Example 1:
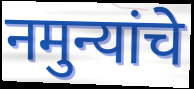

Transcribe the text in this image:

नमुन्यांचे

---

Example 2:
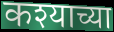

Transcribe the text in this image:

कश्याच्या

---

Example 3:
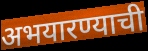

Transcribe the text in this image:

अभयारण्याची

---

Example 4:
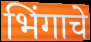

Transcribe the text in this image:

भिंगाचे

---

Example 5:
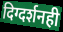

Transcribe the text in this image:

दिग्दर्शनही